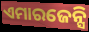
ଏମାରଜେନ୍ସି